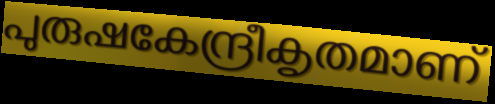
പുരുഷകേന്ദ്രീകൃതമാണ്